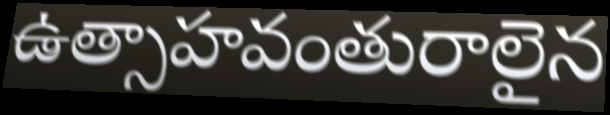
ఉత్సాహవంతురాలైన